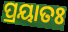
ପ୍ରୟାତଃ